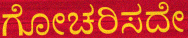
ಗೋಚರಿಸದೇ